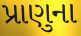
પ્રાણુના